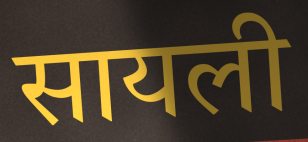
सायली